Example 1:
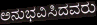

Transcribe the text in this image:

ಅನುಭವಿಸಿದವರು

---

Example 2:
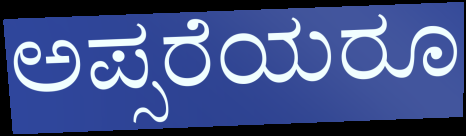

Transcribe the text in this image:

ಅಪ್ಸರೆಯರೂ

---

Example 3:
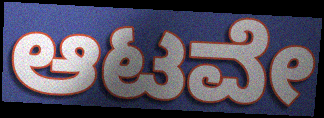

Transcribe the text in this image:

ಆಟವೇ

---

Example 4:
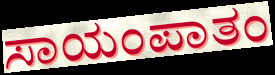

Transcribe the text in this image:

ಸಾಯಂಪಾತಂ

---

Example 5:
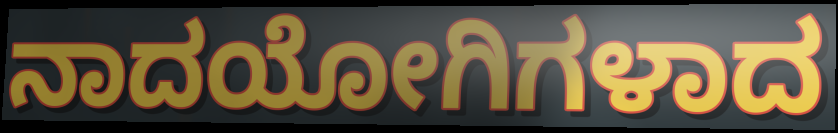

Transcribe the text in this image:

ನಾದಯೋಗಿಗಳಾದ